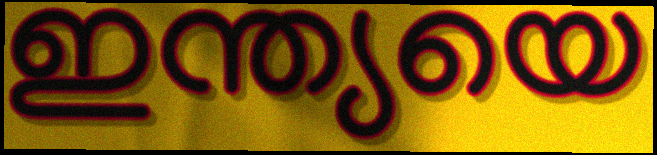
ഇന്ത്യയെ